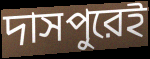
দাসপুরেই